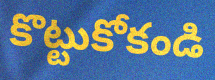
కొట్టుకోకండి